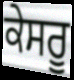
ਕੇਸਰੂ